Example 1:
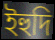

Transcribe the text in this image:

ইহুদি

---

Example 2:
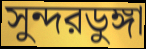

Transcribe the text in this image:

সুন্দরডুঙ্গা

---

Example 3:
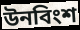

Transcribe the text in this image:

উনবিংশ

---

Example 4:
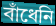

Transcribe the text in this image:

বাঁধেনি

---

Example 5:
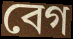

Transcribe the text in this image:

বেগ